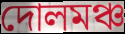
দোলমঞ্চ